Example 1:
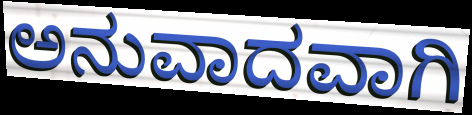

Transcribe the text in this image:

ಅನುವಾದವಾಗಿ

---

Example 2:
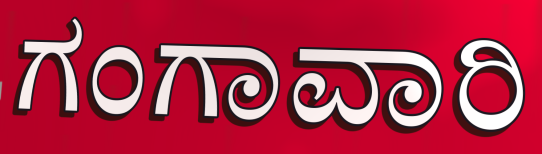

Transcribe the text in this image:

ಗಂಗಾವಾರಿ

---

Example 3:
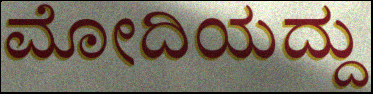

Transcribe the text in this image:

ಮೋದಿಯದ್ದು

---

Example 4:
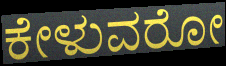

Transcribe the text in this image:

ಕೇಳುವರೋ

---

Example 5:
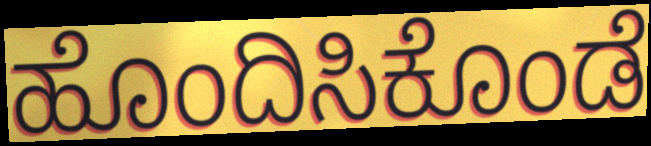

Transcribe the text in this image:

ಹೊಂದಿಸಿಕೊಂಡೆ